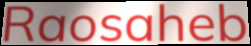
Raosaheb